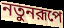
নতুনরূপে